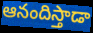
ఆనందిస్తాడా